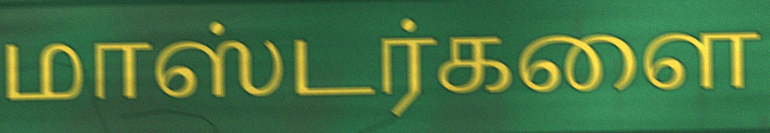
மாஸ்டர்களை